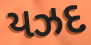
યઝદ